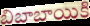
బిబాబాయికి